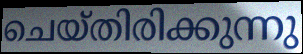
ചെയ്തിരിക്കുന്നു